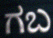
ಗಬ